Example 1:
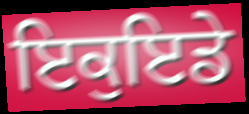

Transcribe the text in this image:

ਇਕੁਇਡੇ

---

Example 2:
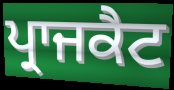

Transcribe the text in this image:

ਪ੍ਰਾਜਕੈਟ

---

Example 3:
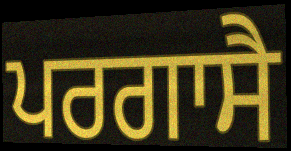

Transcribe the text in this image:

ਪਰਗਾਸੈ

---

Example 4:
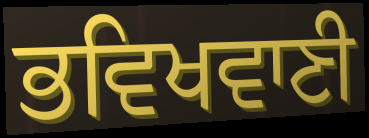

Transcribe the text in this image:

ਭਵਿਖਵਾਣੀ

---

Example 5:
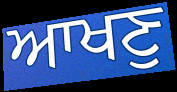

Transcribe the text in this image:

ਆਖਣੁ